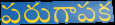
పరుగాపక